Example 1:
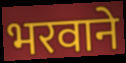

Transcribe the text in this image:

भरवाने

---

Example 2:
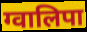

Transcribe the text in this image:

ग्वालिपा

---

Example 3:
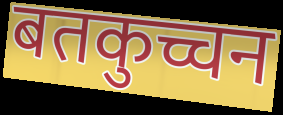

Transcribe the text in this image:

बतकुच्चन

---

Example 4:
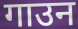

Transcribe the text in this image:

गाउन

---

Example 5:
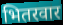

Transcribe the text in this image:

भितरवार